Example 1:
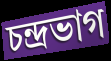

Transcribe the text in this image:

চন্দ্রভাগ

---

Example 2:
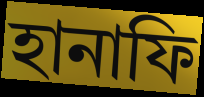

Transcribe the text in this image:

হানাফি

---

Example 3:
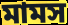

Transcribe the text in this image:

মামস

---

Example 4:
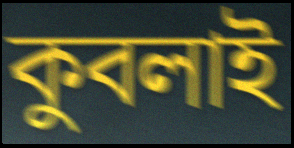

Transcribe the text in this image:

কুবলাই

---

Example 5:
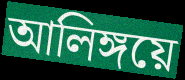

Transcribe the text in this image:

আলিঙ্গয়ে